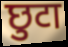
छुटा